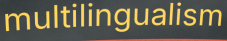
multilingualism